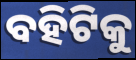
ବହିଟିକୁ